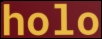
holo